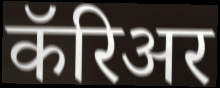
कॅरिअर